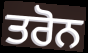
ਤਰੋਨ